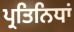
ਪ੍ਰਤਿਨਿਧਾਂ